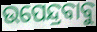
ଉପେନ୍ଦ୍ରବାବୁ